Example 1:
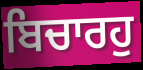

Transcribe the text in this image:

ਬਿਚਾਰਹੁ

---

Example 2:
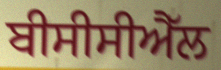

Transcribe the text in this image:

ਬੀਸੀਸੀਐੱਲ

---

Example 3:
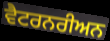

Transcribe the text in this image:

ਵੈਟਰਨਰੀਅਨ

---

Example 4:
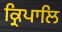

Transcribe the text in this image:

ਕ੍ਰਿਪਾਲਿ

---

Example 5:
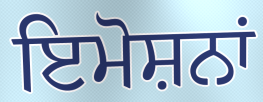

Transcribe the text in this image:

ਇਮੋਸ਼ਨਾਂ